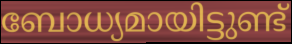
ബോധ്യമായിട്ടുണ്ട്